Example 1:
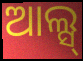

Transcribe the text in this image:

ଆଲ୍ସ୍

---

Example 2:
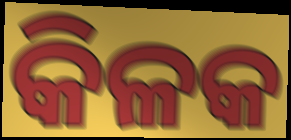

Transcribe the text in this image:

କିଳକ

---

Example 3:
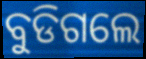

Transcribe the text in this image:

ବୁଡିଗଲେ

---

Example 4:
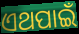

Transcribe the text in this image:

ଏଥପାଇଁ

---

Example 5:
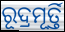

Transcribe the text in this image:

ରୂଦ୍ରମୂର୍ତ୍ତି